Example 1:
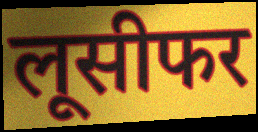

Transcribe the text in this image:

लूसीफर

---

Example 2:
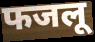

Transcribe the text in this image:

फजलू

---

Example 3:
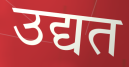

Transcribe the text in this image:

उद्यत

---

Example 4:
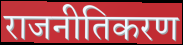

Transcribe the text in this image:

राजनीतिकरण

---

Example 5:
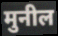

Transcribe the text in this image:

मुनील